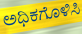
ಅಧಿಕಗೊಳಿಸಿ